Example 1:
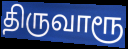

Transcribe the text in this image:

திருவாரூ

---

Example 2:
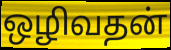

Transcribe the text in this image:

ஒழிவதன்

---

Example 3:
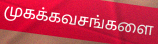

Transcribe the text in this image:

முகக்கவசங்களை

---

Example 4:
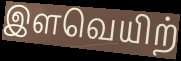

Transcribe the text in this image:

இளவெயிற்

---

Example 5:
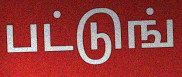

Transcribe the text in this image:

பட்டுங்